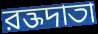
রক্তদাতা